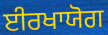
ਈਰਖਾਯੋਗ